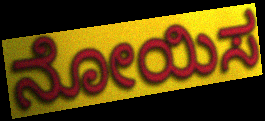
ನೋಯಿಸ